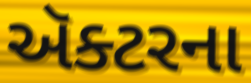
ઍક્ટરના